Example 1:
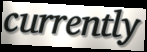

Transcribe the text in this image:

currently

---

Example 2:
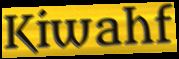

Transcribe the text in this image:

Kiwahf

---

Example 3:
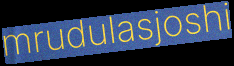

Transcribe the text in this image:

mrudulasjoshi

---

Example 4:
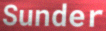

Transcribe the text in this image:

Sunder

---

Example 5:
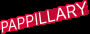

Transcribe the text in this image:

PAPPILLARY